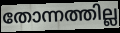
തോന്നത്തില്ല